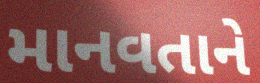
માનવતાને